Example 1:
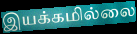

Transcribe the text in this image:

இயக்கமில்லை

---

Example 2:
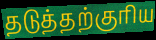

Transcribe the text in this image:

தடுத்தற்குரிய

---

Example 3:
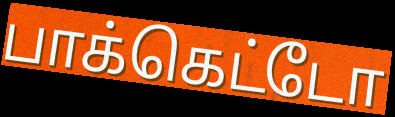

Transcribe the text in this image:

பாக்கெட்டோ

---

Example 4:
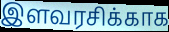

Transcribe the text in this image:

இளவரசிக்காக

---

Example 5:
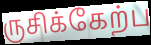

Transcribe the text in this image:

ருசிக்கேற்ப